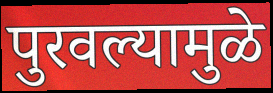
पुरवल्यामुळे